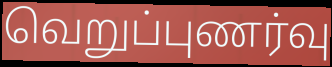
வெறுப்புணர்வு